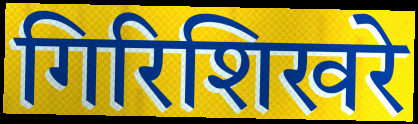
गिरिशिखरे